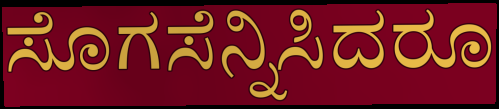
ಸೊಗಸೆನ್ನಿಸಿದರೂ